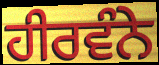
ਹੀਰਵੰਨੇ